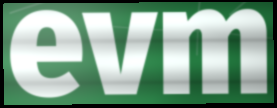
evm